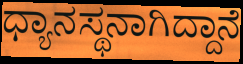
ಧ್ಯಾನಸ್ಥನಾಗಿದ್ದಾನೆ